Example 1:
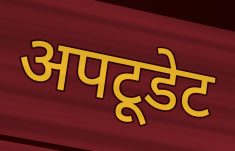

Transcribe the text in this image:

अपटूडेट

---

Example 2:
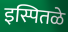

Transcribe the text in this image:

इस्पितळे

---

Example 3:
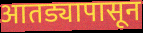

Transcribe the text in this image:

आतड्यापासून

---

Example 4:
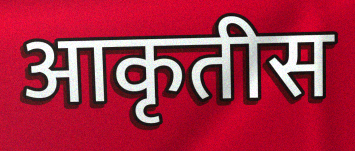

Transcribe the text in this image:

आकृतीस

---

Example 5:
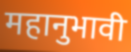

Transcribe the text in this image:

महानुभावी